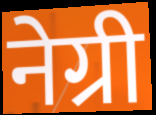
नेग्री